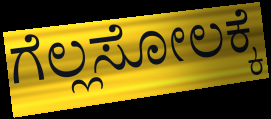
ಗೆಲ್ಲಸೋಲಕ್ಕೆ